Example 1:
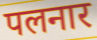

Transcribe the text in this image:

पलनार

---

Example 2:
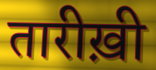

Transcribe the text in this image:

तारीख़ी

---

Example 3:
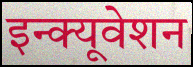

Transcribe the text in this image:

इन्क्यूवेशन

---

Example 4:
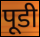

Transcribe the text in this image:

पूडी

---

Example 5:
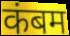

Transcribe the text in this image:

कंबम